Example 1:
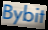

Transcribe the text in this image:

Bybit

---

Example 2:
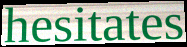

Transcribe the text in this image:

hesitates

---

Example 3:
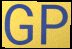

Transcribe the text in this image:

GP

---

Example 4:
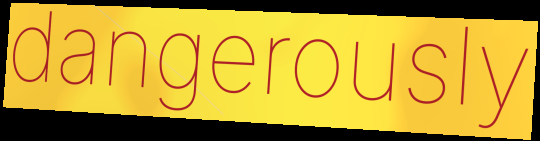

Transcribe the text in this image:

dangerously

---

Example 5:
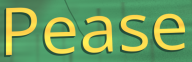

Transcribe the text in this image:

Pease